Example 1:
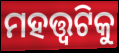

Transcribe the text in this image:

ମହତ୍ତ୍ୱଟିକୁ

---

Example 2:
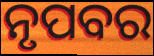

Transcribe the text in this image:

ନୃପବର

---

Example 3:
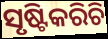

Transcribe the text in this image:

ସୃଷ୍ଟିକରିଚି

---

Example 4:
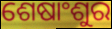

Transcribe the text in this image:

ଶେଷାଂଶୁର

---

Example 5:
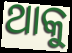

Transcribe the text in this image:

ଥାକୁ